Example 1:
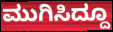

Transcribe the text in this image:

ಮುಗಿಸಿದ್ದೂ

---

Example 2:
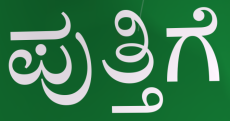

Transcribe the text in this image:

ಪುತ್ತಿಗೆ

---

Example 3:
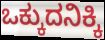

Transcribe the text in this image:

ಒಕ್ಕುದನಿಕ್ಕಿ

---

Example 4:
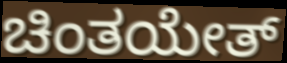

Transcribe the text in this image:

ಚಿಂತಯೇತ್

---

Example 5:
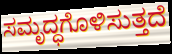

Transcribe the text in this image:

ಸಮೃದ್ಧಗೊಳಿಸುತ್ತದೆ